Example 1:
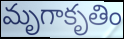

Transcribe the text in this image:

మృగాకృతిం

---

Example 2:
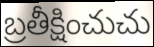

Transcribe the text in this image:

బ్రతీక్షించుచు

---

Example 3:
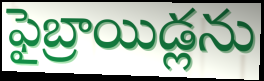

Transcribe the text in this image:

ఫైబ్రాయిడ్లను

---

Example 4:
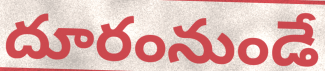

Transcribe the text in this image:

దూరంనుండే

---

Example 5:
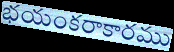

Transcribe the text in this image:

భయంకరాకారము